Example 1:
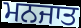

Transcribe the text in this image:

ਮਨਜਾਤ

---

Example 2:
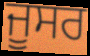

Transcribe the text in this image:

ਜੂਸਰ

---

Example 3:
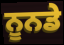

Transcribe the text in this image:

ਨੂਨਡੇ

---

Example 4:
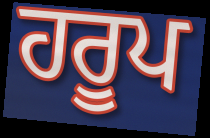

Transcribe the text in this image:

ਹਰੂਪ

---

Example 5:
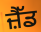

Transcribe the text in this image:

ਜ਼ੈੱਡ